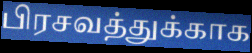
பிரசவத்துக்காக